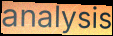
analysis